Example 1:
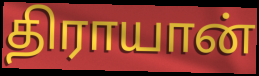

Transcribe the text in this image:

திராயான்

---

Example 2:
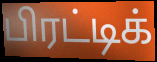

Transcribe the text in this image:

பிரட்டிக்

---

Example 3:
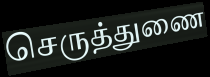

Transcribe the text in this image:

செருத்துணை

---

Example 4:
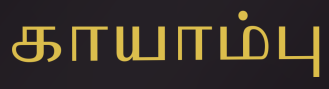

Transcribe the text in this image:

காயாம்பு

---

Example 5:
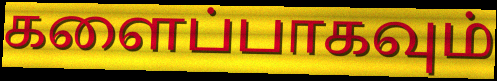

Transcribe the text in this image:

களைப்பாகவும்